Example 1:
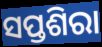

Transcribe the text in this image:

ସପ୍ତଶିରା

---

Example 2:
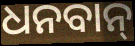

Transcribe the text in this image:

ଧନବାନ୍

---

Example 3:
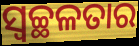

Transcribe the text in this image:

ସ୍ଵଚ୍ଛଳତାର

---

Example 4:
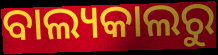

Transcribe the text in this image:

ବାଲ୍ୟକାଲରୁ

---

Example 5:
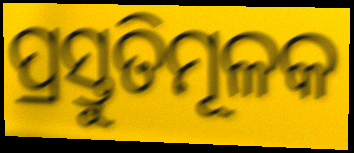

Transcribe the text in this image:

ପ୍ରସ୍ତୁତିମୂଳକ